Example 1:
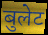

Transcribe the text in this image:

बुलेट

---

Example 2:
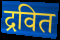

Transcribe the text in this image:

द्रवित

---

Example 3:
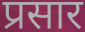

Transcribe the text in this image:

प्रसार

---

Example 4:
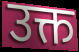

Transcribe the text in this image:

उक्त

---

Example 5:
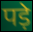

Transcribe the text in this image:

पड़े